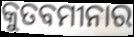
କୁତବମୀନାର